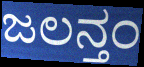
ಜಲನ್ತಂ